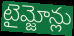
టైమ్జోన్లు